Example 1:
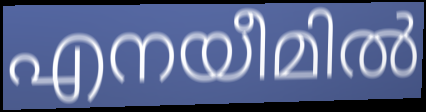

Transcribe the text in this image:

എനയീമിൽ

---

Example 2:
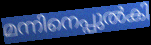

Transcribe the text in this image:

മന്നിനെപ്പുൽകി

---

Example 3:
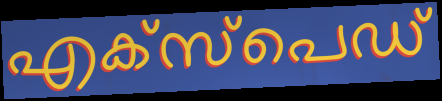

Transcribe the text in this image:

എക്സ്പെഡ്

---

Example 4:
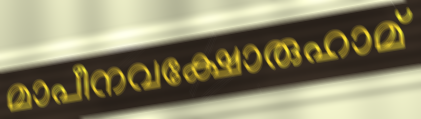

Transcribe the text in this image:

മാപീനവക്ഷോരുഹാമ്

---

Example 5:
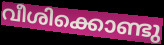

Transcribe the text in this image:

വീശിക്കൊണ്ടു